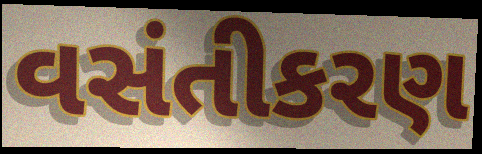
વસંતીકરણ